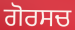
ਗੋਰਸਚ